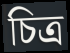
চিত্ৰ